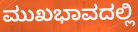
ಮುಖಭಾವದಲ್ಲಿ